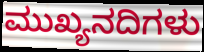
ಮುಖ್ಯನದಿಗಳು